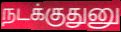
நடக்குதுனு